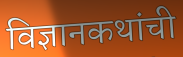
विज्ञानकथांची